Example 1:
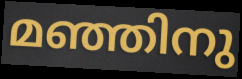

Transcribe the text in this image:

മഞ്ഞിനു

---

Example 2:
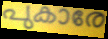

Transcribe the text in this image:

പുകാരേ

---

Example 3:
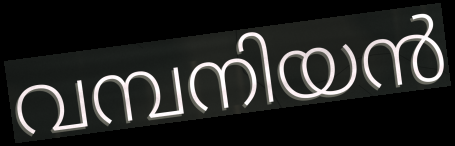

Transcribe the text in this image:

വമ്പനിയൻ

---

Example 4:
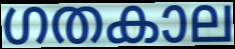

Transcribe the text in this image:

ഗതകാല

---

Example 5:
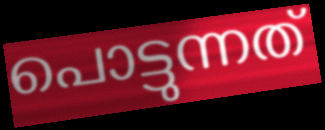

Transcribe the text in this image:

പൊട്ടുന്നത്